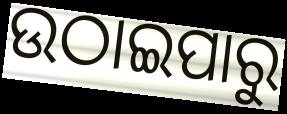
ଉଠାଇପାରୁ